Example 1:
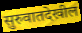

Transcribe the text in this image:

सुरुवातदेखील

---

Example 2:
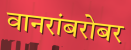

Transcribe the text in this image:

वानरांबरोबर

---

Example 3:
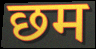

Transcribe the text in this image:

छम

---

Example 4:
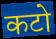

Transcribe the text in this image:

कटो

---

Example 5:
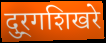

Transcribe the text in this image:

दुर्गशिखरे